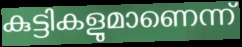
കുട്ടികളുമാണെന്ന്